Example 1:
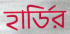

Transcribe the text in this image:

হার্ডির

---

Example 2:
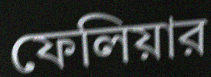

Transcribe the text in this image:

ফেলিয়ার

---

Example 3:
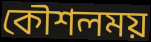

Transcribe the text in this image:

কৌশলময়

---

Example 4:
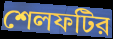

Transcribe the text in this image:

শেলফটির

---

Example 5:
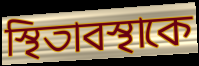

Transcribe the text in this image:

স্থিতাবস্থাকে